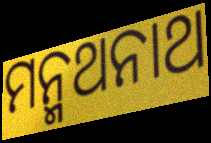
ମନ୍ମଥନାଥ